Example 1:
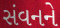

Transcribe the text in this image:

સંવનને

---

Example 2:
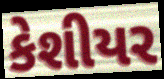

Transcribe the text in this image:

કેશીયર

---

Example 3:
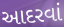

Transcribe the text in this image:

આદરવાં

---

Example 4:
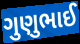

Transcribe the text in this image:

ગુણુભાઈ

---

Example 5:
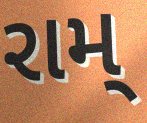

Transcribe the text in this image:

રામ્